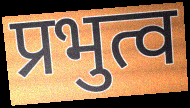
प्रभुत्व